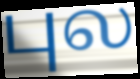
புல